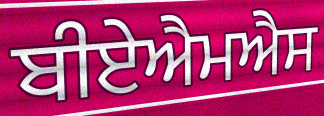
ਬੀਏਐਮਐਸ